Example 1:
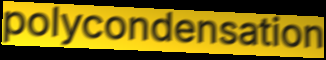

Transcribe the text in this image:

polycondensation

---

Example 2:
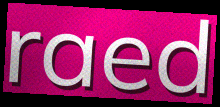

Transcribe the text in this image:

raed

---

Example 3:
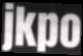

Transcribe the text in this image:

jkpo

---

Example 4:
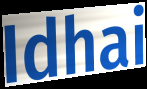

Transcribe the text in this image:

Idhai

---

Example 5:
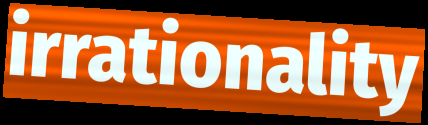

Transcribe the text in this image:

irrationality